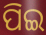
ପିଇ